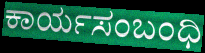
ಕಾರ್ಯಸಂಬಂಧಿ